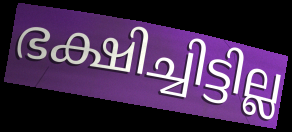
ഭക്ഷിച്ചിട്ടില്ല